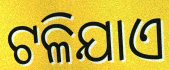
ଟଳିଯାଏ